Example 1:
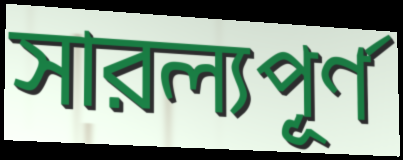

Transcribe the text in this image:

সারল্যপূর্ণ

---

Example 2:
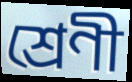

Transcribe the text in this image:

শ্রেণী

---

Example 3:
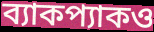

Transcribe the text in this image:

ব্যাকপ্যাকও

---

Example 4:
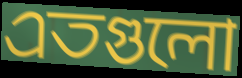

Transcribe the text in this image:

এতগুলো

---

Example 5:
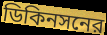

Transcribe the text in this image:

ডিকিনসনের